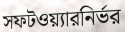
সফটওয়্যারনির্ভর